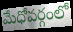
మేధోవర్గంలో